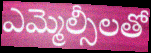
ఎమ్మెల్సీలతో